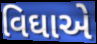
વિઘાએ